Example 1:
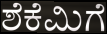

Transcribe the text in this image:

ಶೆಕೆಮಿಗೆ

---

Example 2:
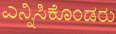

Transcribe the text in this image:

ಎನ್ನಿಸಿಕೊಂಡರು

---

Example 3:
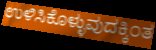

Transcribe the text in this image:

ಉಳಿಸಿಕೊಳ್ಳುವುದಕ್ಕಿಂತ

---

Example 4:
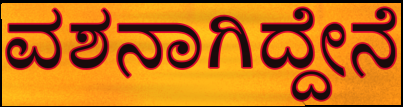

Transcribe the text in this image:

ವಶನಾಗಿದ್ದೇನೆ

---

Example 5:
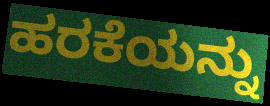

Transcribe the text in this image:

ಹರಕೆಯನ್ನು